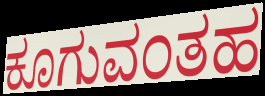
ಕೂಗುವಂತಹ